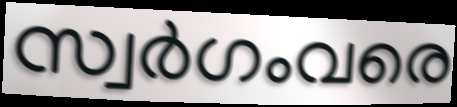
സ്വർഗംവരെ